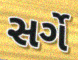
સર્ગે